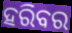
ହରିବର